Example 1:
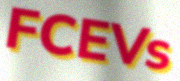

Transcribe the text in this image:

FCEVs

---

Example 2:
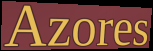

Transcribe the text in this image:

Azores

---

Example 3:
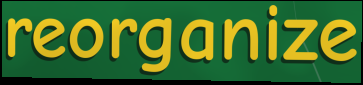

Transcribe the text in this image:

reorganize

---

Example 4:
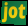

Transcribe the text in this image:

jot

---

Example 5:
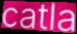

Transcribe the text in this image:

catla